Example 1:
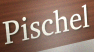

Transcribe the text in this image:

Pischel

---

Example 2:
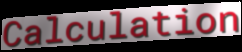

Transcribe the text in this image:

Calculation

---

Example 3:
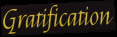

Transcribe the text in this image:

Gratification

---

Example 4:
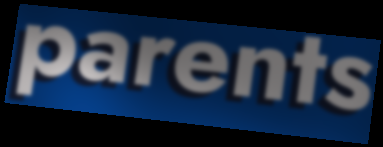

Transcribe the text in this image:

parents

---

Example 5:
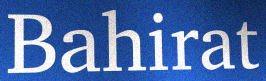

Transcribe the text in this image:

Bahirat